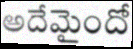
అదేమైందో